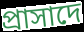
প্রাসাদে